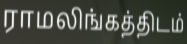
ராமலிங்கத்திடம்